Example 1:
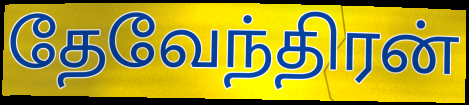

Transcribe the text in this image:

தேவேந்திரன்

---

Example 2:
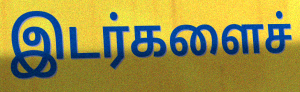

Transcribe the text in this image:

இடர்களைச்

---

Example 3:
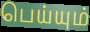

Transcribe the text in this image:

பெய்யும்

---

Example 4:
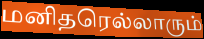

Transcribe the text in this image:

மனிதரெல்லாரும்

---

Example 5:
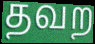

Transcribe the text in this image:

தவற